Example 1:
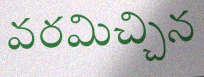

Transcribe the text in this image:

వరమిచ్చిన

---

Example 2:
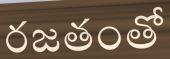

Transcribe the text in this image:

రజతంతో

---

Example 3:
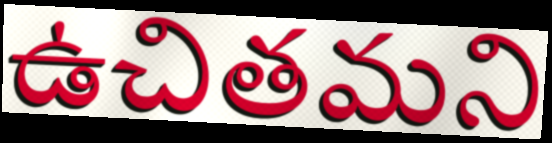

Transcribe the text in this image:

ఉచితమని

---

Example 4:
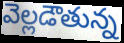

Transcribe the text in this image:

వెల్లడౌతున్న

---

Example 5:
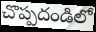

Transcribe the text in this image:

చొప్పదండిలో